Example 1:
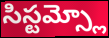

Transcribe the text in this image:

సిస్టమ్స్లో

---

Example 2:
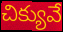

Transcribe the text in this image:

చిక్యువే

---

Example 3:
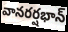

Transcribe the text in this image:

వానరర్షభాన్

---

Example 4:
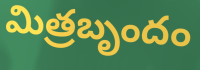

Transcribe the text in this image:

మిత్రబృందం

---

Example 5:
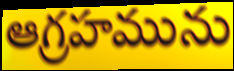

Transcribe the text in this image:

ఆగ్రహమును